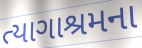
ત્યાગાશ્રમના